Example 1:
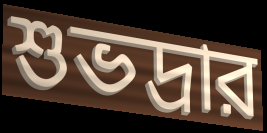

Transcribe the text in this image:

শুভদ্রার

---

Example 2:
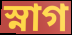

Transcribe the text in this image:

স্নাগ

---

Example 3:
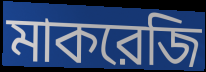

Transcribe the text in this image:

মাকরেজি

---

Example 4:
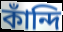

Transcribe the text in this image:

কাঁন্দি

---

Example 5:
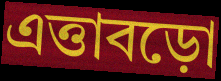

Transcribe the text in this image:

এত্তাবড়ো